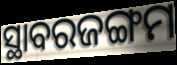
ସ୍ଥାବରଜଙ୍ଗମ